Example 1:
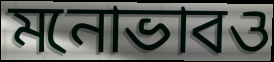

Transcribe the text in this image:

মনোভাবও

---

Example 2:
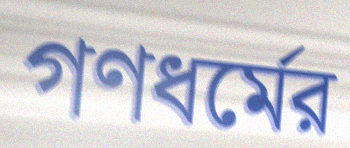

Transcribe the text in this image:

গণধর্মের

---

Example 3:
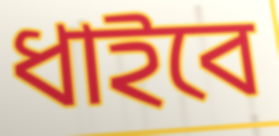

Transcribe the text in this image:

ধাইবে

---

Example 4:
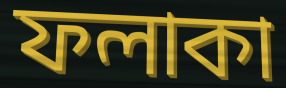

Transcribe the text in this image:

ফলাকা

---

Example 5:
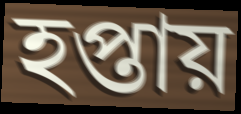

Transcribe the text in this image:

হপ্তায়